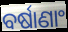
ବର୍ଷାଣାଂ